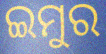
ଇମୁର